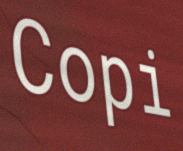
Copi